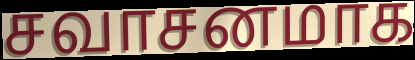
சவாசனமாக